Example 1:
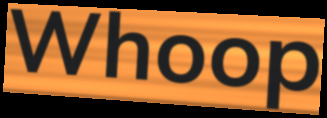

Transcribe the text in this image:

Whoop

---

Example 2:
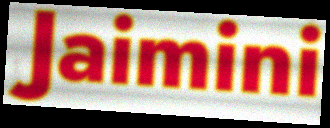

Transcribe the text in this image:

Jaimini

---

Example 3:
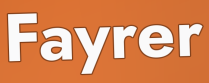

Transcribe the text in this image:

Fayrer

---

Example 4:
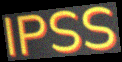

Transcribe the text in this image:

IPSS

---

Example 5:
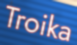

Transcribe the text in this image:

Troika